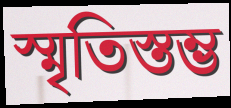
স্মৃতিস্তম্ভ